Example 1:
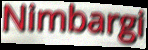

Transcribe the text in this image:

Nimbargi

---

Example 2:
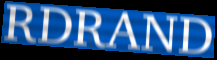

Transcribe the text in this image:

RDRAND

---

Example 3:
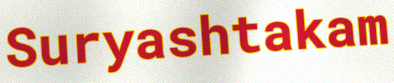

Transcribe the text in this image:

Suryashtakam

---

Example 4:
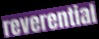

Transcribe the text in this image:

reverential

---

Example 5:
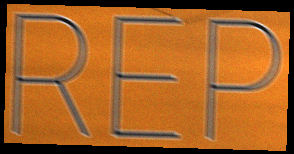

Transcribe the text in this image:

REP